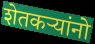
शेतकऱ्यांनो